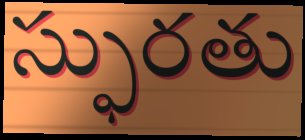
స్ఫురతు